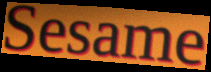
Sesame